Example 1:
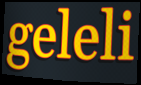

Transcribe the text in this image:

geleli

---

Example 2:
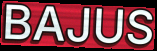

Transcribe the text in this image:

BAJUS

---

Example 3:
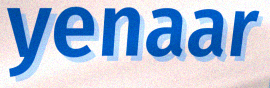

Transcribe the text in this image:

yenaar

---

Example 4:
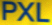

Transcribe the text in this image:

PXL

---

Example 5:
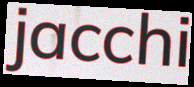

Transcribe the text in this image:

jacchi